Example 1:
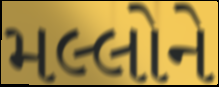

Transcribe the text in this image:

મલ્લોને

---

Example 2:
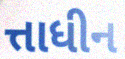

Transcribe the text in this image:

ત્તાધીન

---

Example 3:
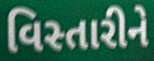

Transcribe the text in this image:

વિસ્તારીને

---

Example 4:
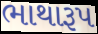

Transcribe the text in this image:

ભાથારૂપ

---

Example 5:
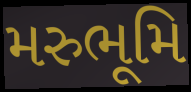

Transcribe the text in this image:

મરુભૂમિ